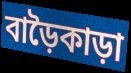
বাড়ৈকাড়া